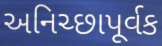
અનિચ્છાપૂર્વક